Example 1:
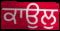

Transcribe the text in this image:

ਕਾਉਲੁ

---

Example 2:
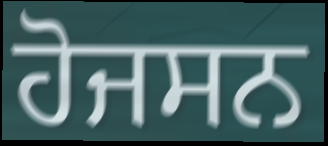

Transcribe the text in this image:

ਹੋਜਸਨ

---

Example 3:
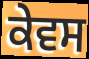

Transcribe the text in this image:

ਕੇਵਸ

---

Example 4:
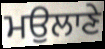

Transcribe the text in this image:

ਮਉਲਾਣੇ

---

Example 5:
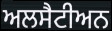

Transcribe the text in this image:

ਅਲਸੈਟੀਅਨ